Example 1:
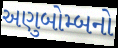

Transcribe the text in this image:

અણુબોમ્બનો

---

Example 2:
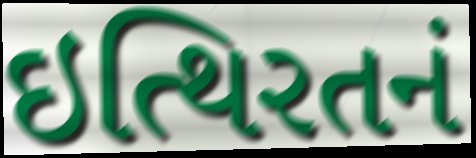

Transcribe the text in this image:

ઇત્થિરતનં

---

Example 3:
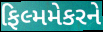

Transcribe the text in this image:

ફિલ્મમેકરને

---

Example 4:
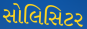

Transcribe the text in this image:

સોલિસિટર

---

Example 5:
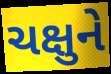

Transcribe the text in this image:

ચક્ષુને